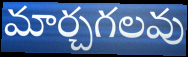
మార్చగలవు